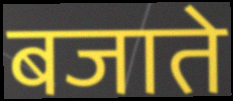
बजाते